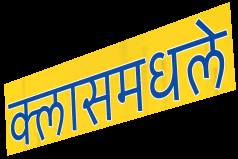
क्लासमधले